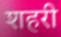
शहरी